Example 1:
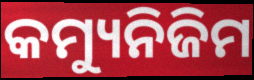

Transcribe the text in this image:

କମ୍ୟୁନିଜିମ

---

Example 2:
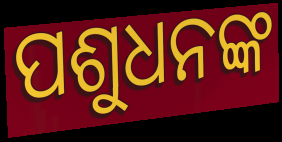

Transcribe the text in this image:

ପଶୁଧନଙ୍କ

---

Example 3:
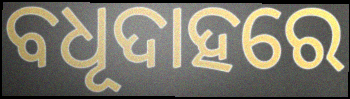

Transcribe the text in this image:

ବଧୂଦାହରେ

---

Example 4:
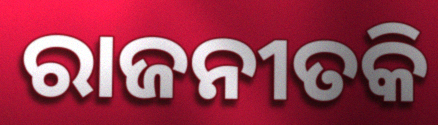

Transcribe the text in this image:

ରାଜନୀତକି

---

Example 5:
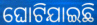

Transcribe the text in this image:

ଘୋଟିଯାଇଛି